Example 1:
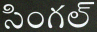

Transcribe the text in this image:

సింగల్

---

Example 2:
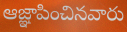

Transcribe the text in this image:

ఆజ్ఞాపించినవారు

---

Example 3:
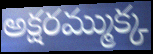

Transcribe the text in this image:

అక్షరమ్ముక్క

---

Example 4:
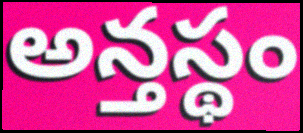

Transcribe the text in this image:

అన్తస్థం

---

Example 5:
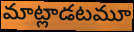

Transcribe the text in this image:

మాట్లాడటమూ